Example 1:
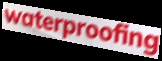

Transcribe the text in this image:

waterproofing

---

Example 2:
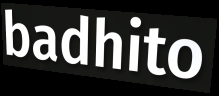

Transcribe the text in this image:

badhito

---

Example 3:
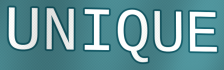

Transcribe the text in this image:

UNIQUE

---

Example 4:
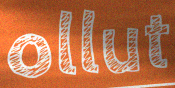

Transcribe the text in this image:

ollut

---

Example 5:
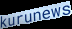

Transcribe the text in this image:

kurunews